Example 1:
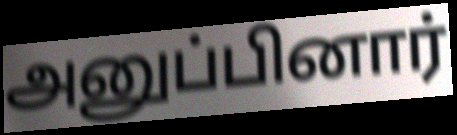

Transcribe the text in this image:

அனுப்பினார்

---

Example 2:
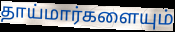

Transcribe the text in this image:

தாய்மார்களையும்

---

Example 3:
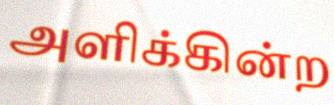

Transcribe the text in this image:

அளிக்கின்ற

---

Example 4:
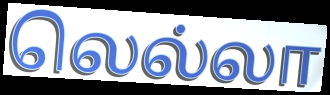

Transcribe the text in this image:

லெல்லா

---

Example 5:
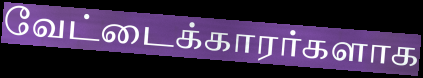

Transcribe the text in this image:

வேட்டைக்காரர்களாக